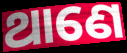
ଥାଣେ